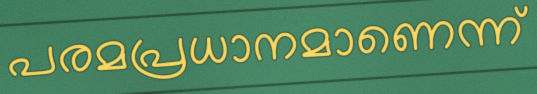
പരമപ്രധാനമാണെന്ന്